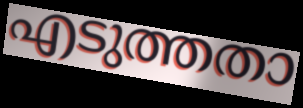
എടുത്തതാ